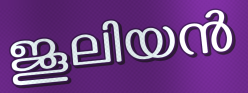
ജൂലിയൻ